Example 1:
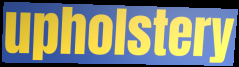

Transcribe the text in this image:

upholstery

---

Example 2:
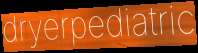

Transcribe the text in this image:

dryerpediatric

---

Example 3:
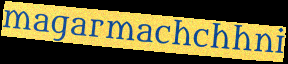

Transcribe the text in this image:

magarmachchhni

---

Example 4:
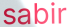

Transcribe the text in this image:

sabir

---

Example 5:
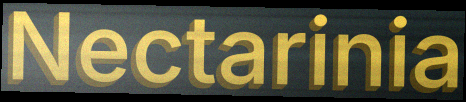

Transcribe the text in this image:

Nectarinia